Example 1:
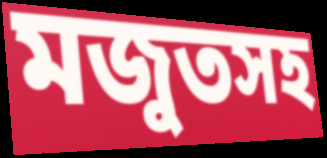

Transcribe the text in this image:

মজুতসহ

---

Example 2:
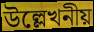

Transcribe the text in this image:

উল্লেখনীয়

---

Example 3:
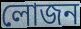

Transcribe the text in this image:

লোজন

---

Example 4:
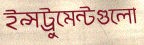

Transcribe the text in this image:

ইন্সট্রুমেন্টগুলো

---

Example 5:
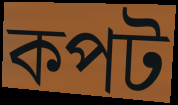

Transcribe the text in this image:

কপট